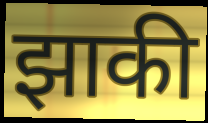
झाकी